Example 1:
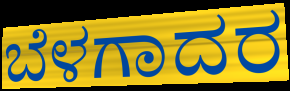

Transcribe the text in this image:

ಬೆಳಗಾದರ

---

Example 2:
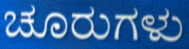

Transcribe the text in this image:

ಚೂರುಗಳು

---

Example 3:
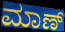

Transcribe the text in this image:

ಮಾಣ್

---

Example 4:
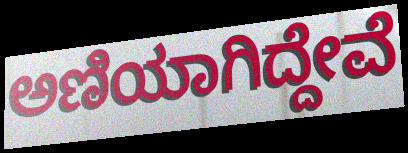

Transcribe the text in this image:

ಅಣಿಯಾಗಿದ್ದೇವೆ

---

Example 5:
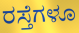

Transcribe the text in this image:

ರಸ್ತೆಗಳೂ